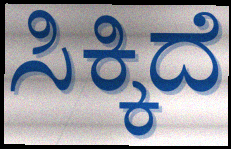
ಸಿಕ್ಕಿದೆ